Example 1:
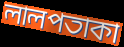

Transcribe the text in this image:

লালপতাকা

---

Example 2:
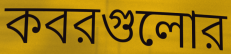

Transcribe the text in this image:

কবরগুলোর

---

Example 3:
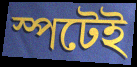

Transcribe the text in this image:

স্পটেই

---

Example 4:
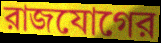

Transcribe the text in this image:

রাজযোগের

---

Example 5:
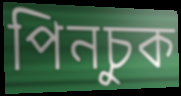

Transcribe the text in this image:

পিনচুক